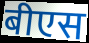
बीएस